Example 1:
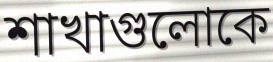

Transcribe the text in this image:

শাখাগুলোকে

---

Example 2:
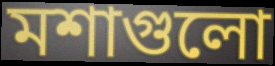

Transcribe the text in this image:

মশাগুলো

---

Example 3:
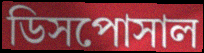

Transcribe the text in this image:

ডিসপোসাল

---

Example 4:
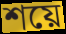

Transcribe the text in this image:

শয়ে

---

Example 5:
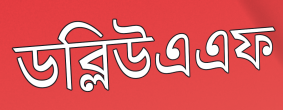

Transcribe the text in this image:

ডব্লিউএএফ